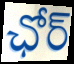
ఛోర్